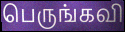
பெருங்கவி